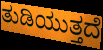
ತುಡಿಯುತ್ತದೆ